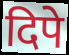
दिपे